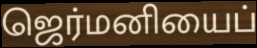
ஜெர்மனியைப்